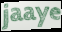
jaaye